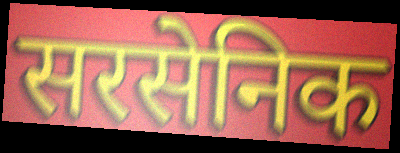
सरसेनिक